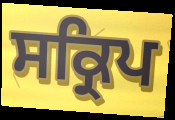
ਸਕ੍ਰਿਪ